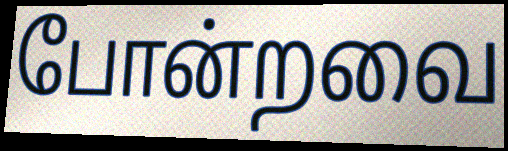
போன்றவை